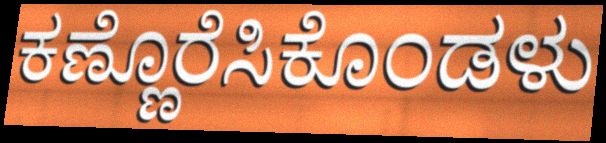
ಕಣ್ಣೊರೆಸಿಕೊಂಡಳು